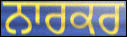
ਨਾਰਕਰ